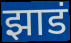
झाडं